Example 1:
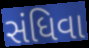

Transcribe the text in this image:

સંધિવા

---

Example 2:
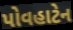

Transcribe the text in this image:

પોવહાટેન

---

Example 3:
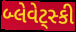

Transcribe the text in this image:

બ્લેવેટ્સ્કી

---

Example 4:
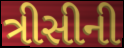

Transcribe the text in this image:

ત્રીસીની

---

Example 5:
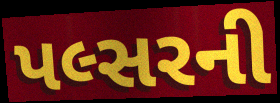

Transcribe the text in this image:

પલ્સરની